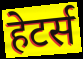
हेटर्स